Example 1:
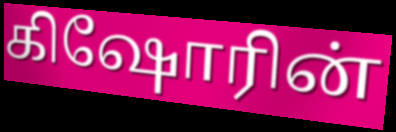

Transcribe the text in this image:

கிஷோரின்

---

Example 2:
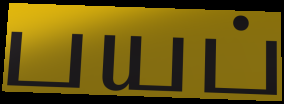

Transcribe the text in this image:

பயப்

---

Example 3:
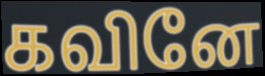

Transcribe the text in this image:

கவினே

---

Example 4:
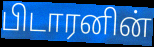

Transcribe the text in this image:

பிடாரனின்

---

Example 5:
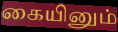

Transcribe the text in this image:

கையினும்